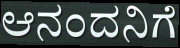
ಆನಂದನಿಗೆ